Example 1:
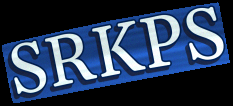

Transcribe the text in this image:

SRKPS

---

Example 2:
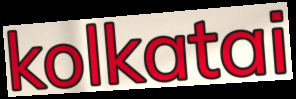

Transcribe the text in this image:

kolkatai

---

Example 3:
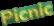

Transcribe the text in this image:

Picnic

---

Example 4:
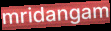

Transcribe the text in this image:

mridangam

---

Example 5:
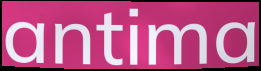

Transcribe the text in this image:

antima